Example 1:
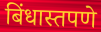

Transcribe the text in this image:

बिंधास्तपणे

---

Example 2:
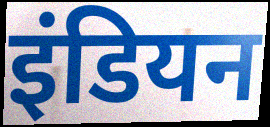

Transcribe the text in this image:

इंडियन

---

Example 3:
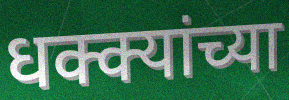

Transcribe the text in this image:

धक्क्यांच्या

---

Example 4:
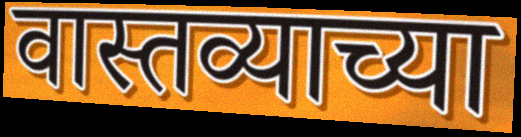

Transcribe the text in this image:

वास्तव्याच्या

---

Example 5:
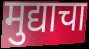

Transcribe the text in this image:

मुद्याचा